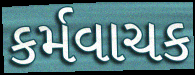
કર્મવાચક